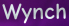
Wynch